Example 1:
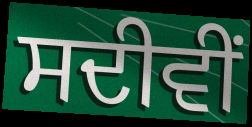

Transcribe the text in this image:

ਸਦੀਵੀਂ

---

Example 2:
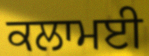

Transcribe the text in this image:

ਕਲਾਮਈ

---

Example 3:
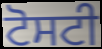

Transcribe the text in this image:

ਟੋਸਟੀ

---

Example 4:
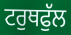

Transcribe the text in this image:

ਟਰੁਥਫੁੱਲ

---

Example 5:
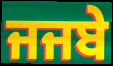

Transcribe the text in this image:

ਜਜਬੇ